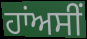
ਹਾਂਅਸੀਂ